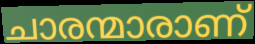
ചാരന്മാരാണ്